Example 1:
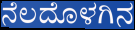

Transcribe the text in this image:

ನೆಲದೊಳಗಿನ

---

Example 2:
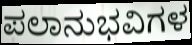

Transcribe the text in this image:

ಪಲಾನುಭವಿಗಳ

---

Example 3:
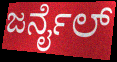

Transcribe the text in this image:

ಜರ್ನೈಲ್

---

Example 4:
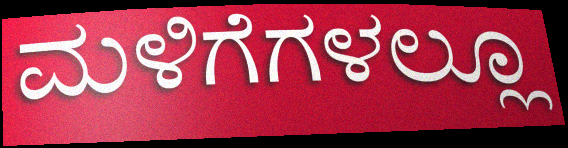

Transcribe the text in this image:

ಮಳಿಗೆಗಳಲ್ಲೂ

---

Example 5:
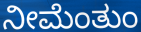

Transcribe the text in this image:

ನೀಮೆಂತುಂ